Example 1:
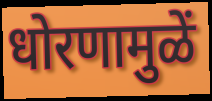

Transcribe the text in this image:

धोरणामुळें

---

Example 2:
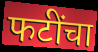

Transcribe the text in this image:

फटींचा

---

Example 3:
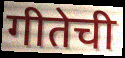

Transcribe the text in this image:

गीतेची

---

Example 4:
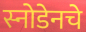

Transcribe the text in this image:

स्नोडेनचे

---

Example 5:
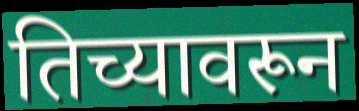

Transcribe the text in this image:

तिच्यावरून